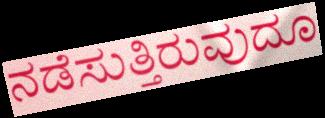
ನಡೆಸುತ್ತಿರುವುದೂ